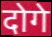
दोगे